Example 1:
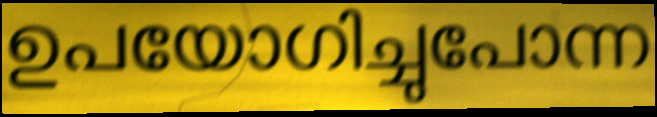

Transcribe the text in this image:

ഉപയോഗിച്ചുപോന്ന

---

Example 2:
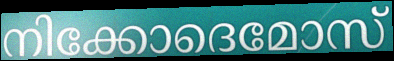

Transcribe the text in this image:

നിക്കോദെമോസ്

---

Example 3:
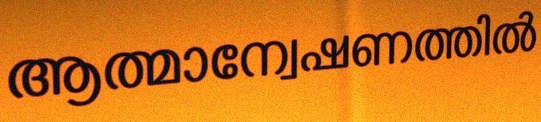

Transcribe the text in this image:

ആത്മാന്വേഷണത്തിൽ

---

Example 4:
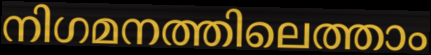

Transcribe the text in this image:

നിഗമനത്തിലെത്താം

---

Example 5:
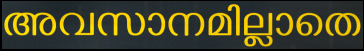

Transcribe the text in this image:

അവസാനമില്ലാതെ